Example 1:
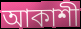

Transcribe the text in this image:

আকাশী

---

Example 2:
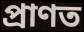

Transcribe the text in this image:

প্ৰাণত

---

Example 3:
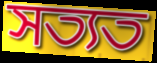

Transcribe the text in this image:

সত্যত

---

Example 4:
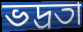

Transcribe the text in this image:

ভদ্ৰতা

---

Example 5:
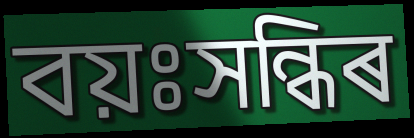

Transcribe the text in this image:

বয়ঃসন্ধিৰ